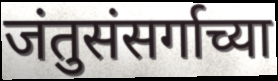
जंतुसंसर्गाच्या